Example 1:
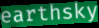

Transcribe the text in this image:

earthsky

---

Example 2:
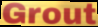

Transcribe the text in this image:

Grout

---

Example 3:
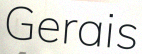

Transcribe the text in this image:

Gerais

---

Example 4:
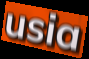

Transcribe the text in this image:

usia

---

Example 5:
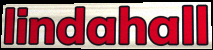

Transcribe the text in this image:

lindahall